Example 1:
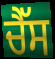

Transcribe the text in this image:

ਚੈੱਸ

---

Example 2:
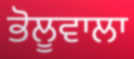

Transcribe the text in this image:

ਭੋਲੂਵਾਲਾ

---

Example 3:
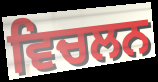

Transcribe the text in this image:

ਵਿਚਲਨ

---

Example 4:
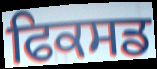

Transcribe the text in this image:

ਫਿਕਸਡ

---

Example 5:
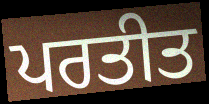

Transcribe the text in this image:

ਪਰਤੀਤ